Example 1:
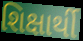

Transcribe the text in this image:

શિક્ષાર્થી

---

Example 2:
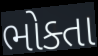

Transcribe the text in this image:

ભોક્તા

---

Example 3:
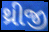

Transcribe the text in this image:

થ્રીજી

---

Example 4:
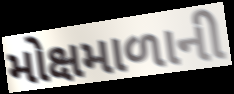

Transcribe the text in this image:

મોક્ષમાળાની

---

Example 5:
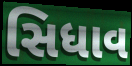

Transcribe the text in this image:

સિધાવ